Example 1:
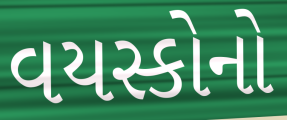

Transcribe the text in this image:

વયસ્કોનો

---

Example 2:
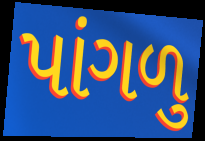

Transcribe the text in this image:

પાંગળુ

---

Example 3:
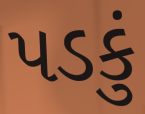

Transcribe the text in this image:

પડકું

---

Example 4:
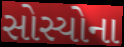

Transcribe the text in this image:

સોસ્યોના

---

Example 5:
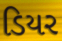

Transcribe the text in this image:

ડિયર